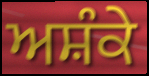
ਅਸ਼ੰਕੇ